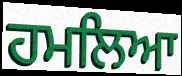
ਹਮਲਿਆ